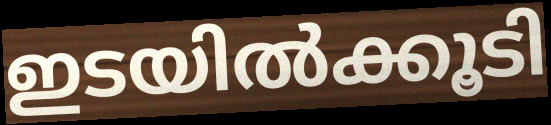
ഇടയിൽക്കൂടി